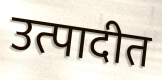
उत्पादीत